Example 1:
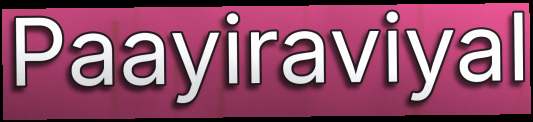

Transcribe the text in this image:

Paayiraviyal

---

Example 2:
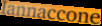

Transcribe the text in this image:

Iannaccone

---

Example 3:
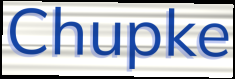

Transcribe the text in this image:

Chupke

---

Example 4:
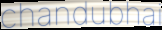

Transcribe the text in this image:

chandubhai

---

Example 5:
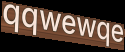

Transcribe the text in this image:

qqwewqe